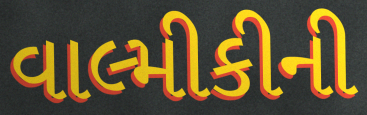
વાલ્મીકીની